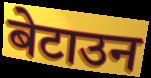
बेटाउन